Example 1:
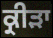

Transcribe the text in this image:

ਕ੍ਰੀੜਾ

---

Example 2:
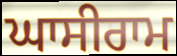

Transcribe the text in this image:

ਘਾਸੀਰਾਮ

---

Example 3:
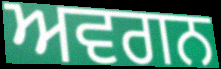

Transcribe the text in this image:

ਅਵਗਨ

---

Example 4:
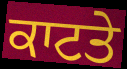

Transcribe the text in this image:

ਕਾਟਤੇ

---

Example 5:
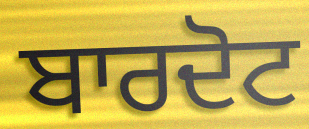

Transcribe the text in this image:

ਬਾਰਦੋਟ